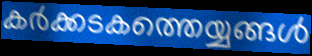
കർക്കടകത്തെയ്യങ്ങൾ